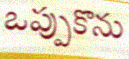
ఒప్పుకొను